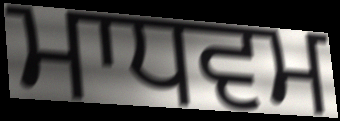
ਮਾਧਵਮ